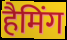
हैमिंग